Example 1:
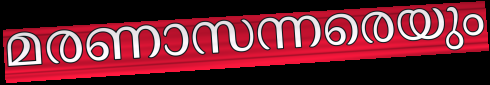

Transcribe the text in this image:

മരണാസന്നരെയും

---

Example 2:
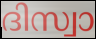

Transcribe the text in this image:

ദിസ്വാ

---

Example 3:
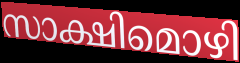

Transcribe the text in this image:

സാക്ഷിമൊഴി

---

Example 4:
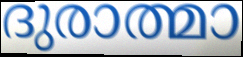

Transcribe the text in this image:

ദുരാത്മാ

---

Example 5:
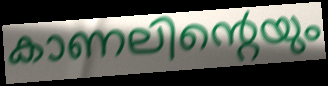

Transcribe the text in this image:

കാണലിന്റെയും